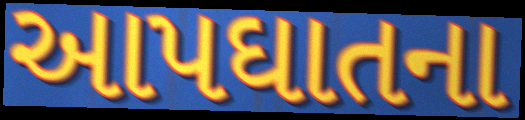
આપઘાતના